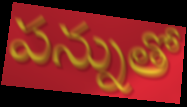
పన్నుతో